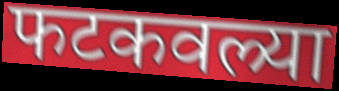
फटकवल्या